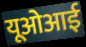
यूओआई